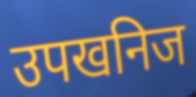
उपखनिज